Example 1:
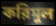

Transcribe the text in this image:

করিমুল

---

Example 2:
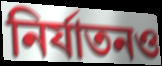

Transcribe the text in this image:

নির্যাতনও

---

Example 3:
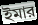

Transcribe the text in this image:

ইমার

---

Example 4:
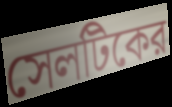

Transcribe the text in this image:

সেলটিকের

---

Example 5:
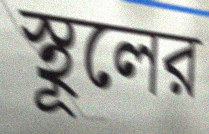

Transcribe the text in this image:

স্থূলের